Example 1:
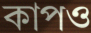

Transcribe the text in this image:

কাপও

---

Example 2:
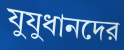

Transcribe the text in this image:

যুযুধানদের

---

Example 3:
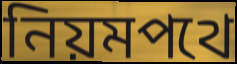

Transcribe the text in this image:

নিয়মপথে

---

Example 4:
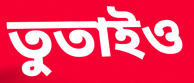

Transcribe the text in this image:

তুতাইও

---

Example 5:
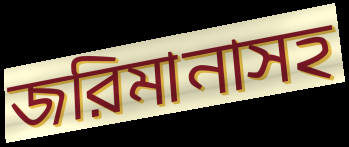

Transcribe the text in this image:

জরিমানাসহ